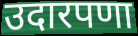
उदारपणा